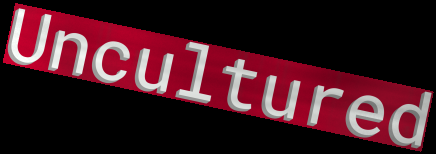
Uncultured